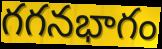
గగనభాగం